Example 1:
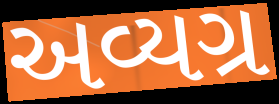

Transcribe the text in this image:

અવ્યગ્ર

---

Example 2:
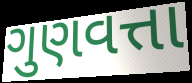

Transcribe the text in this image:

ગુણવત્તા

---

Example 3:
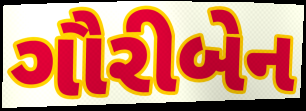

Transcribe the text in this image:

ગૌરીબેન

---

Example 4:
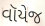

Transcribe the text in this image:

વૉયેજ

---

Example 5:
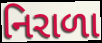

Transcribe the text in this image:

નિરાળા